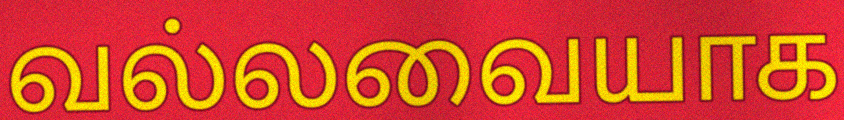
வல்லவையாக